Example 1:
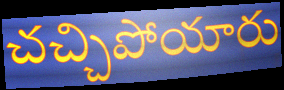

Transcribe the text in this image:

చచ్చిపోయారు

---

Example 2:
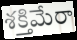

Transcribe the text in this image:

శక్తిమేరా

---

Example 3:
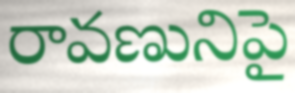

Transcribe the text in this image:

రావణునిపై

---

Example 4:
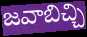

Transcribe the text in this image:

జవాబిచ్చి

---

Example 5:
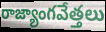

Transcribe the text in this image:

రాజ్యాంగవేత్తలు